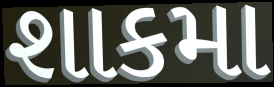
શાકમા